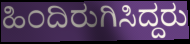
ಹಿಂದಿರುಗಿಸಿದ್ದರು